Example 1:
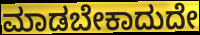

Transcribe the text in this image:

ಮಾಡಬೇಕಾದುದೇ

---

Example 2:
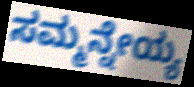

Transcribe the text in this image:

ಸಮ್ಮನ್ನೇಯ್ಯ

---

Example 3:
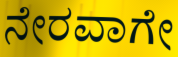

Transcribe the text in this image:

ನೇರವಾಗೇ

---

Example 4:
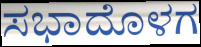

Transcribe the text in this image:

ಸಭಾದೊಳಗ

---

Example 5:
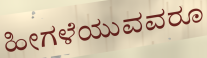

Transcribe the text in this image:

ಹೀಗಳೆಯುವವರೂ